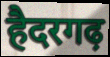
हैदरगढ़